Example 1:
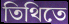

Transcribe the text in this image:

তিথিতে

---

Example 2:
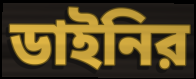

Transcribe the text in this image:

ডাইনির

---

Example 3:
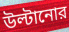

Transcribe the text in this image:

উল্টানোর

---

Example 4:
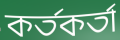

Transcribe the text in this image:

কর্তকর্তা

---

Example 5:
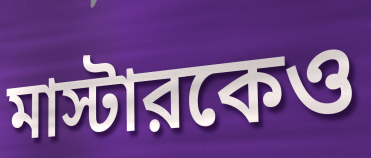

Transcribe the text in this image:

মাস্টারকেও